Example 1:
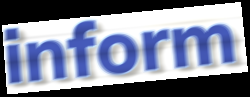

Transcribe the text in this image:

inform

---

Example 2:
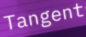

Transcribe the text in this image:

Tangent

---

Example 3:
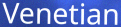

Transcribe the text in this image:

Venetian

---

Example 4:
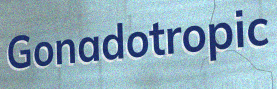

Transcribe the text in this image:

Gonadotropic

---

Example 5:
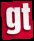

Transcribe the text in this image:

gt